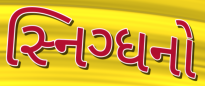
સ્નિગ્ધનો